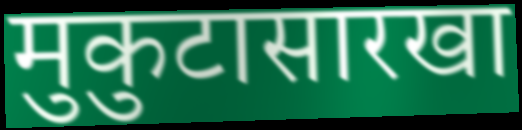
मुकुटासारखा